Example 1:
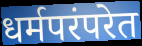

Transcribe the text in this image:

धर्मपरंपरेत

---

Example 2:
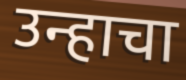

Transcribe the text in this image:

उन्हाचा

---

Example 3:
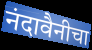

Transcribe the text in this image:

नंदावैनीचा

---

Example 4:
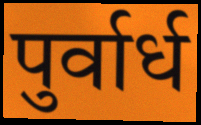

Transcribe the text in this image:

पुर्वार्ध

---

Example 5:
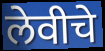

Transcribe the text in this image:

लेवीचे